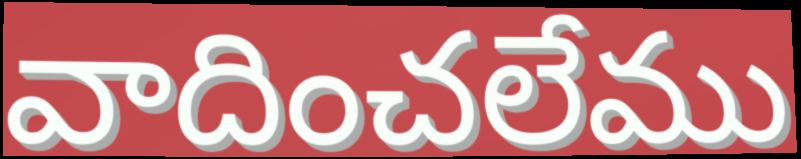
వాదించలేము